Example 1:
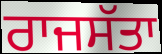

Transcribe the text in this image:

ਰਾਜਸੱਤਾ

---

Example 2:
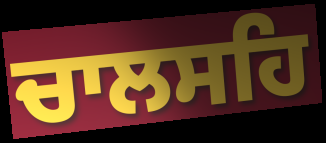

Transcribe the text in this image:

ਚਾਲਸਹਿ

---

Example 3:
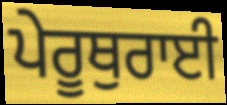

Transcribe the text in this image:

ਪੇਰੂਥੁਰਾਈ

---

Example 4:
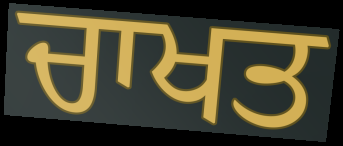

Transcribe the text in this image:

ਚਾਖਤ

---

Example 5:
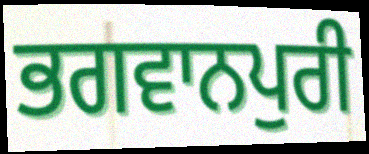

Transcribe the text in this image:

ਭਗਵਾਨਪੁਰੀ